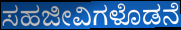
ಸಹಜೀವಿಗಳೊಡನೆ